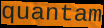
quantam